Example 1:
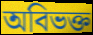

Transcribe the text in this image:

অবিভক্ত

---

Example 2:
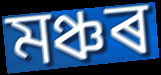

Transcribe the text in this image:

মঞ্চৰ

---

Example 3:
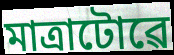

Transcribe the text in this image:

মাত্ৰাটোৱে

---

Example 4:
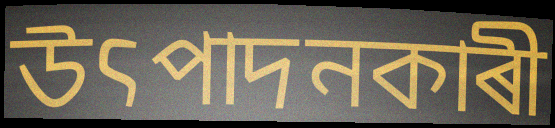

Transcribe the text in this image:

উৎপাদনকাৰী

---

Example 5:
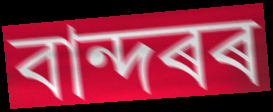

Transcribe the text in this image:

বান্দৰৰ